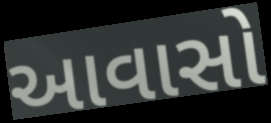
આવાસો